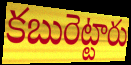
కబురెట్టారు